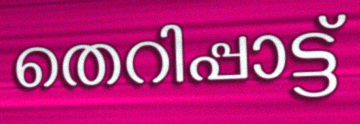
തെറിപ്പാട്ട്